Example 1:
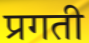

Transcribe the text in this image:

प्रगती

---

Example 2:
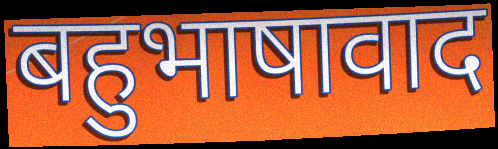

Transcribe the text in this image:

बहुभाषावाद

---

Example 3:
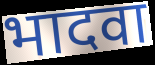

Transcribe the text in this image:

भादवा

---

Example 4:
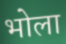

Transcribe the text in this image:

भोला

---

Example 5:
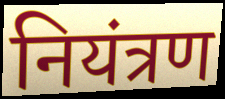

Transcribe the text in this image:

नियंत्रण